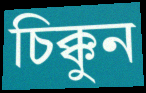
চিক্কুন